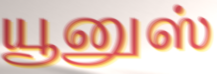
யூனுஸ்